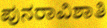
ಪುನರಾವಿಶಾತಿ